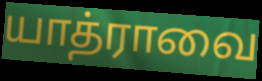
யாத்ராவை